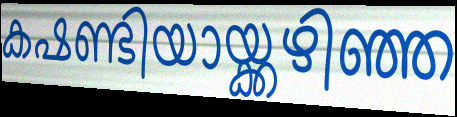
കഷണ്ടിയായ്ക്കഴിഞ്ഞ